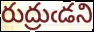
రుద్రుఁడని